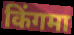
किंगमा